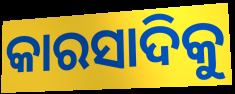
କାରସାଦିକୁ